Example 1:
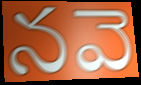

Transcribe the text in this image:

నవె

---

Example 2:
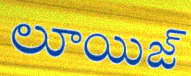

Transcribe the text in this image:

లూయిజ్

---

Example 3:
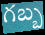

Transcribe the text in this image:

గబ్బ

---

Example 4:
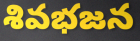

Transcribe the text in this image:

శివభజన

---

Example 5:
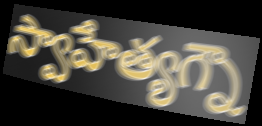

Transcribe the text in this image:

స్వాహేత్యగ్నౌ